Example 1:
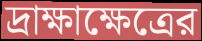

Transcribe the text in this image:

দ্রাক্ষাক্ষেত্রের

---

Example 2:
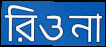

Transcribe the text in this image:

রিওনা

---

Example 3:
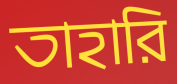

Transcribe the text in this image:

তাহারি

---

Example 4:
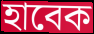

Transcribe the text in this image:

হাবেক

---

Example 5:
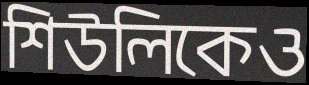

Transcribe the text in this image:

শিউলিকেও